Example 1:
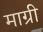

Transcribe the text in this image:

माग्री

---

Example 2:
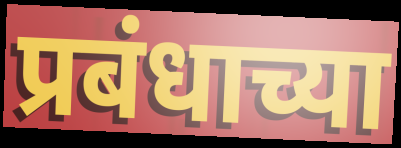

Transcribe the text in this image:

प्रबंधाच्या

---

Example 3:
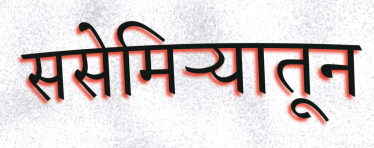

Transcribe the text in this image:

ससेमिऱ्यातून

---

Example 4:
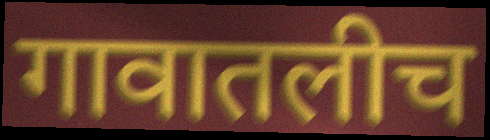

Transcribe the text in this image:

गावातलीच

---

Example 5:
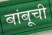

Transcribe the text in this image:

बांबूची